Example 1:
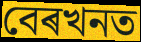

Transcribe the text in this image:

বেৰখনত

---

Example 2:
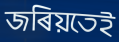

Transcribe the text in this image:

জৰিয়তেই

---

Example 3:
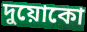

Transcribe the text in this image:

দুয়োকো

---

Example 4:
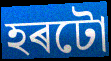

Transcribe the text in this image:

হৰটো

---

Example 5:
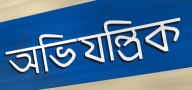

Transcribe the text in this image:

অভিযন্ত্ৰিক